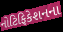
નોટિફિકેશનના